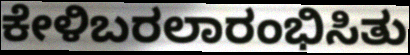
ಕೇಳಿಬರಲಾರಂಭಿಸಿತು